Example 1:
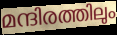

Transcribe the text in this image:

മന്ദിരത്തിലും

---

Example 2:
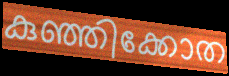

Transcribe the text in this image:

കുഞ്ഞിക്കോത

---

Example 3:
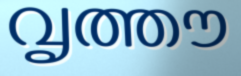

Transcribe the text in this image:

വൃത്തൗ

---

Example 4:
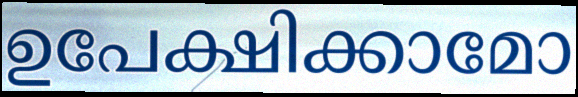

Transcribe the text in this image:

ഉപേക്ഷിക്കാമോ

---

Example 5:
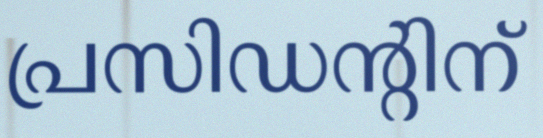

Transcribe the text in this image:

പ്രസിഡന്റിന്